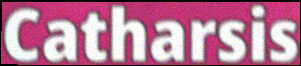
Catharsis